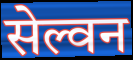
सेल्वन